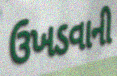
ઉખડવાની